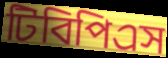
টিবিপিএস